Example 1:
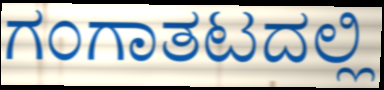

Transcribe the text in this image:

ಗಂಗಾತಟದಲ್ಲಿ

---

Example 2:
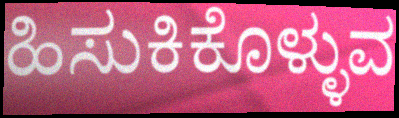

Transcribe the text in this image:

ಹಿಸುಕಿಕೊಳ್ಳುವ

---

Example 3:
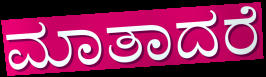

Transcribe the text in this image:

ಮಾತಾದರೆ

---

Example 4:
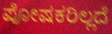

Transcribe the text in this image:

ಪೋಷಕರಿಲ್ಲದೆ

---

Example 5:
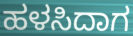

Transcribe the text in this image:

ಹಳಸಿದಾಗ